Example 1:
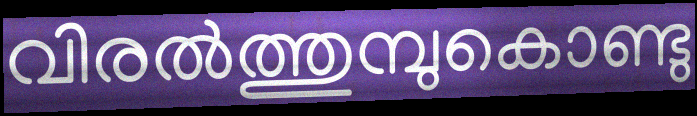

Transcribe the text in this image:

വിരൽത്തുമ്പുകൊണ്ടു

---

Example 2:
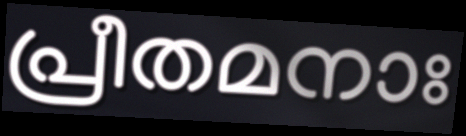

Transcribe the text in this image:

പ്രീതമനാഃ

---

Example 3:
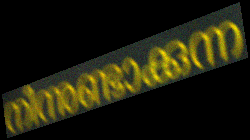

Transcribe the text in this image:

നിന്നുണ്ടാക്കുന്ന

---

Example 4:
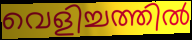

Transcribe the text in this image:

വെളിച്ചത്തിൽ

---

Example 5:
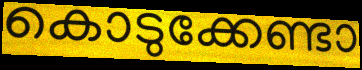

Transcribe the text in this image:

കൊടുക്കേണ്ടാ